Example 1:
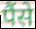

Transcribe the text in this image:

पैंसे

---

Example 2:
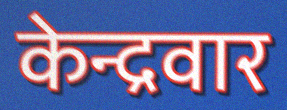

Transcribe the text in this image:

केन्द्रवार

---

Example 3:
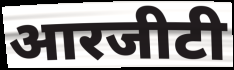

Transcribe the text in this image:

आरजीटी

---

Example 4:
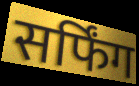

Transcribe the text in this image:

सर्फिंग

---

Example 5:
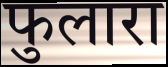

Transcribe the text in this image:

फुलारा